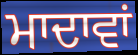
ਮਾਦਾਵਾਂ